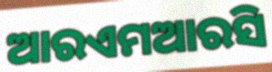
ଆରଏମଆରସି